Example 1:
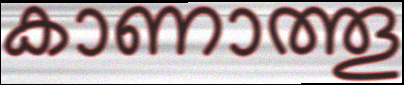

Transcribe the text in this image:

കാണാത്തൂ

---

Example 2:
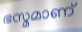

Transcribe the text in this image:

ഭസ്മമാണ്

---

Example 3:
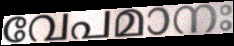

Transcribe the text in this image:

വേപമാനഃ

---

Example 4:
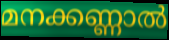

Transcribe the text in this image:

മനക്കണ്ണാൽ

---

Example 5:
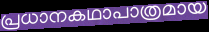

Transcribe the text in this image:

പ്രധാനകഥാപാത്രമായ